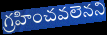
గ్రహించవలెనని